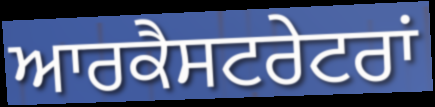
ਆਰਕੈਸਟਰੇਟਰਾਂ